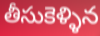
తీసుకెళ్ళిన